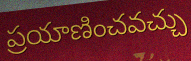
ప్రయాణించవచ్చు